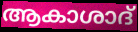
ആകാശാദ്